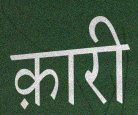
क़ारी